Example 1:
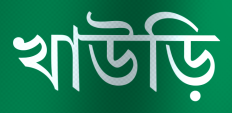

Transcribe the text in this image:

খাউড়ি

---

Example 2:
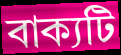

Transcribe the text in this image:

বাক্যটি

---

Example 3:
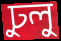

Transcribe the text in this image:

ঢুলু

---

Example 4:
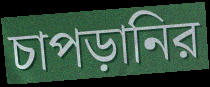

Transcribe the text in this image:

চাপড়ানির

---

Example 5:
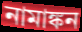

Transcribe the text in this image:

নামাঙ্কন